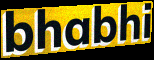
bhabhi